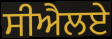
ਸੀਐਲਏ